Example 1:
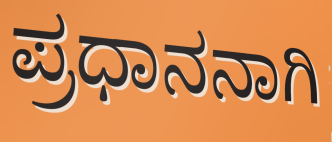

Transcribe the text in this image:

ಪ್ರಧಾನನಾಗಿ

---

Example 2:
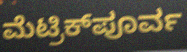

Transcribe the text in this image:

ಮೆಟ್ರಿಕ್‌ಪೂರ್ವ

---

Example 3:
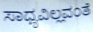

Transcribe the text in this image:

ಸಾಧ್ಯವಿಲ್ಲವಂತೆ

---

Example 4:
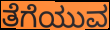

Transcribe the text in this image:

ತೆಗೆಯುವ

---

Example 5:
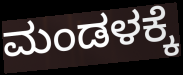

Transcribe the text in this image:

ಮಂಡಳಕ್ಕೆ